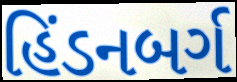
હિંડનબર્ગ